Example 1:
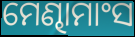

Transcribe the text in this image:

ମେଣ୍ଢାମାଂସ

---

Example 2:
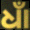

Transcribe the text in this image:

ଧାଁ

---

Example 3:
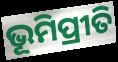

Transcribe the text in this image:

ଭୂମିପ୍ରୀତି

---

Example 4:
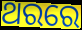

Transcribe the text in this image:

ଥରରେ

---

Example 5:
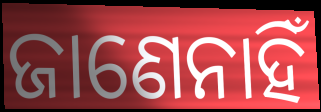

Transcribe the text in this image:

ଜାଣେନାହିଁ